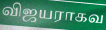
விஜயராகவ